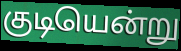
குடியென்று